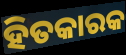
ହିତକାରକ